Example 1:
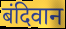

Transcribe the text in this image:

बंदिवान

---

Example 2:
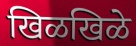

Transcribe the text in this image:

खिळखिळे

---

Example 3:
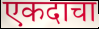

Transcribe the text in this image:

एकदाचा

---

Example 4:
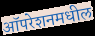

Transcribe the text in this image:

ऑपरेशनमधील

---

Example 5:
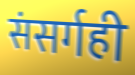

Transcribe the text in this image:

संसर्गही